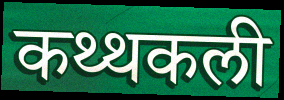
कथ्थकली